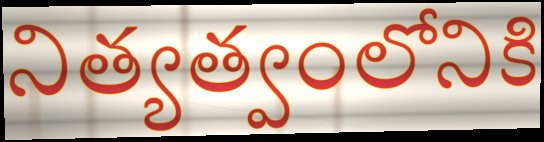
నిత్యత్వంలోనికి